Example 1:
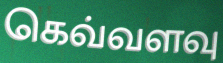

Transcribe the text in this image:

கெவ்வளவு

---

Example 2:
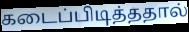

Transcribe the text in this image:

கடைப்பிடித்ததால்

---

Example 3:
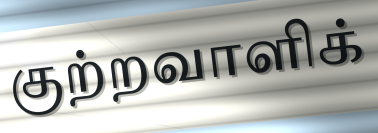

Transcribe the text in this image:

குற்றவாளிக்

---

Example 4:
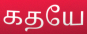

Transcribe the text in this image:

கதயே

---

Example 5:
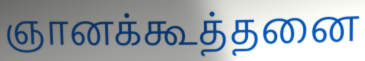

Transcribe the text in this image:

ஞானக்கூத்தனை